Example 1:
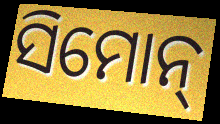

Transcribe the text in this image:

ସିମୋନ୍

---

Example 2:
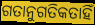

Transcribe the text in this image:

ଗତାନୁଗତିକତାହିଁ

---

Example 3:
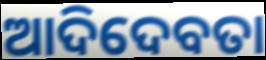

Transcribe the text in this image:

ଆଦିଦେବତା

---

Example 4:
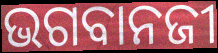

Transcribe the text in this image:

ଭଗବାନଜୀ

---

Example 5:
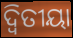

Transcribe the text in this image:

ଦ୍ୱିତୀୟା